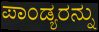
ಪಾಂಡ್ಯರನ್ನು